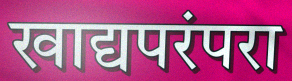
खाद्यपरंपरा